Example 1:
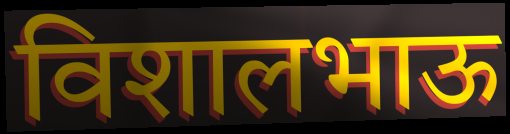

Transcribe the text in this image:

विशालभाऊ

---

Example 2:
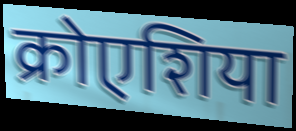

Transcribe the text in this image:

क्रोएशिया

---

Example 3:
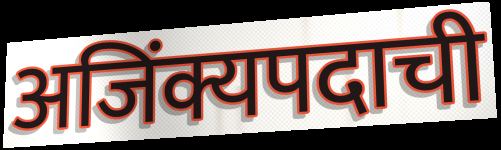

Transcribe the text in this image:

अजिंक्यपदाची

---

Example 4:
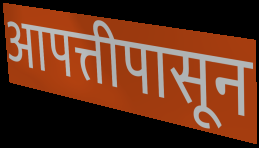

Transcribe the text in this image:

आपत्तीपासून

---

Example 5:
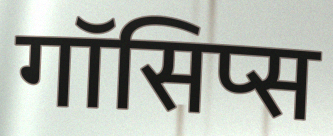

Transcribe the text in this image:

गॉसिप्स